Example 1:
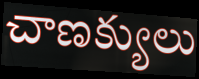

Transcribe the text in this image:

చాణక్యులు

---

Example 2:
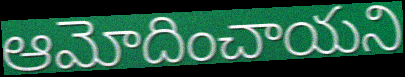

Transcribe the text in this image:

ఆమోదించాయని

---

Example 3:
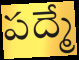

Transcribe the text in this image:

పద్మే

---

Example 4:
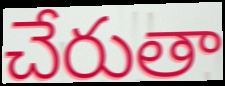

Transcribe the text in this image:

చేరుతా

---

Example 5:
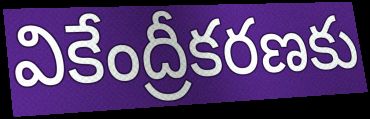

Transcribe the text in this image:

వికేంద్రీకరణకు